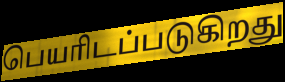
பெயரிடப்படுகிறது